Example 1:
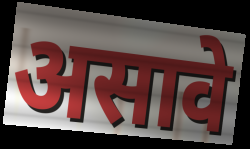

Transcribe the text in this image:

असावे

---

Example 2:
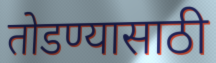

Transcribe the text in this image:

तोडण्यासाठी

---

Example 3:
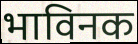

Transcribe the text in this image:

भाविनक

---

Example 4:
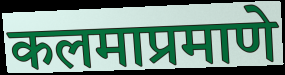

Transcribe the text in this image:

कलमाप्रमाणे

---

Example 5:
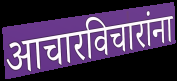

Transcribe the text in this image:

आचारविचारांना